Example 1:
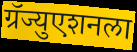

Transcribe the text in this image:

ग्रॅज्युएशनला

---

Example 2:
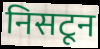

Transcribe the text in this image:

निसटून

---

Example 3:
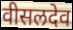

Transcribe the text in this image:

वीसलदेव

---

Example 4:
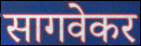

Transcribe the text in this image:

सागवेकर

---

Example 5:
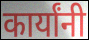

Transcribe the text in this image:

कार्यांनी